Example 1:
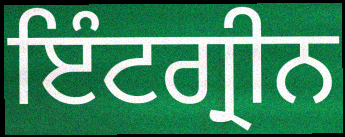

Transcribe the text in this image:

ਇੰਟਗ੍ਰੀਨ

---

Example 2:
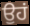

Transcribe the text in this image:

ਉਹਂ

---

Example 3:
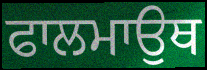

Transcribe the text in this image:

ਫਾਲਮਾਉਥ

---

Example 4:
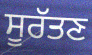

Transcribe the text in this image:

ਸੂਰੱਤਣ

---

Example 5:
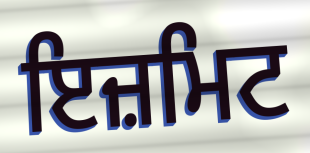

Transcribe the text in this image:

ਇਜ਼ਮਿਟ